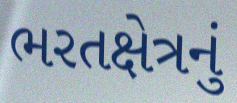
ભરતક્ષેત્રનું